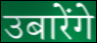
उबारेंगे